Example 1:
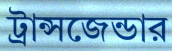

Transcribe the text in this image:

ট্রান্সজেন্ডার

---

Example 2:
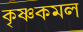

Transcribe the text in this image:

কৃষ্ণকমল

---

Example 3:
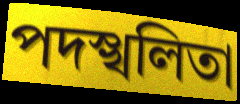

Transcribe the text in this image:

পদস্খলিতা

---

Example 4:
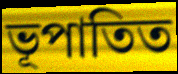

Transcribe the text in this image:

ভূপাতিত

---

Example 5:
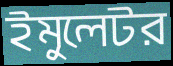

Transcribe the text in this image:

ইমুলেটর